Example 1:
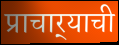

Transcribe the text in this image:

प्राचार्याची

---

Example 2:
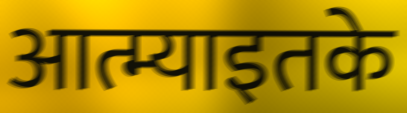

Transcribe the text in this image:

आत्म्याइतके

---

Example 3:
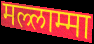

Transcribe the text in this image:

मल्लाम्मा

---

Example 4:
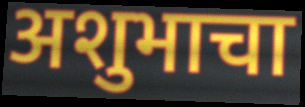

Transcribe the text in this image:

अशुभाचा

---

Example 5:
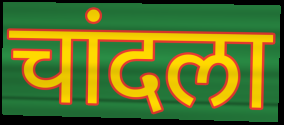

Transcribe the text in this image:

चांदला